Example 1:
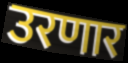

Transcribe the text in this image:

उरणार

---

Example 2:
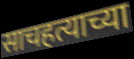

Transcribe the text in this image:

साचहत्याच्या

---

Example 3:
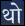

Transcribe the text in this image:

थो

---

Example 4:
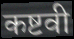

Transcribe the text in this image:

कष्टवी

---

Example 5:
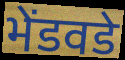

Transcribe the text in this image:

भेंडवडे